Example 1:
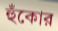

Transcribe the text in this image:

হুঁকোর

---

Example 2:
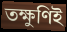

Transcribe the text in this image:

তক্ষুণিই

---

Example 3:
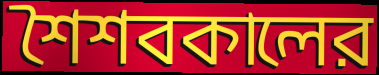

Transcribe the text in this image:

শৈশবকালের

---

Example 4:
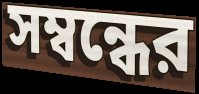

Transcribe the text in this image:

সম্বন্ধের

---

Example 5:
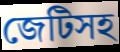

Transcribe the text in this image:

জেটিসহ